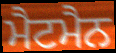
ਮੈਟਮੈਨ